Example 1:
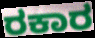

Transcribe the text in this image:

ರಕಾರ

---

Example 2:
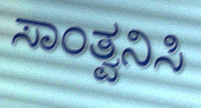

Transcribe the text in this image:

ಸಾಂತ್ವನಿಸಿ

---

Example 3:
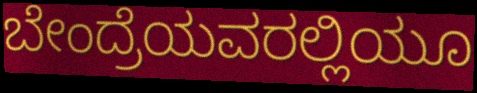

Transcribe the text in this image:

ಬೇಂದ್ರೆಯವರಲ್ಲಿಯೂ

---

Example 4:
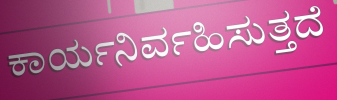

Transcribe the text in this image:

ಕಾರ್ಯನಿರ್ವಹಿಸುತ್ತದೆ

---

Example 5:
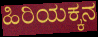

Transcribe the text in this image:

ಹಿರಿಯಕ್ಕನ